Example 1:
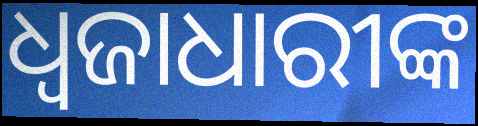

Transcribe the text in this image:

ଧ୍ୱଜାଧାରୀଙ୍କ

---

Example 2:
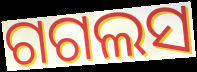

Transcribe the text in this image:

ଗଗଲସ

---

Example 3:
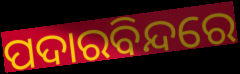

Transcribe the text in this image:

ପଦାରବିନ୍ଦରେ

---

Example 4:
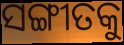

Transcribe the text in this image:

ସଙ୍ଗୀତକୁ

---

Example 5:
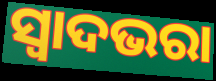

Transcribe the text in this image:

ସ୍ଵାଦଭରା